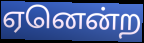
ஏனென்ற